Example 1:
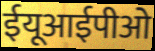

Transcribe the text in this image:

ईयूआईपीओ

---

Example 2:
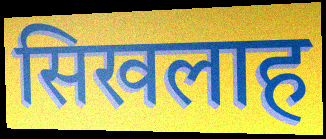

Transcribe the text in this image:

सिखलाह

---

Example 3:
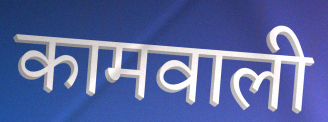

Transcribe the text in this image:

कामवाली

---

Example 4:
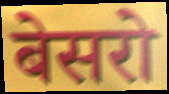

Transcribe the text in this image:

बेसरो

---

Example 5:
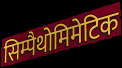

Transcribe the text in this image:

सिम्पैथोमिमेटिक